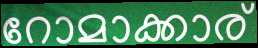
റോമാക്കാര്